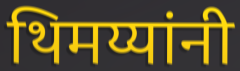
थिमय्यांनी